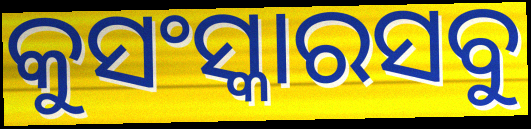
କୁସଂସ୍କାରସବୁ